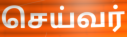
செய்வர்